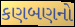
કણબણનો